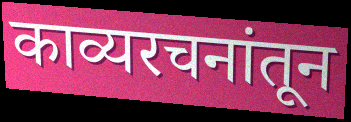
काव्यरचनांतून